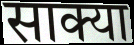
साक्या